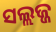
ସଲ୍ଲଜ୍ଜ